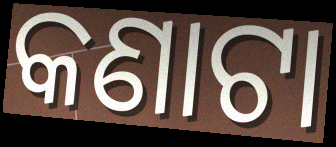
କଣାଟା